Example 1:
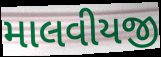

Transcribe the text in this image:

માલવીયજી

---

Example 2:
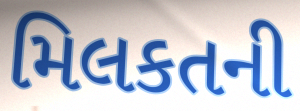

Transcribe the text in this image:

મિલકતની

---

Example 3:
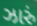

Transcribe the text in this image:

ઝારું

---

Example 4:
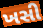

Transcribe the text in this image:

ખસી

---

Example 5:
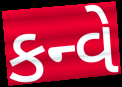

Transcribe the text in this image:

કન્વે